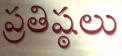
ప్రతిష్ఠలు